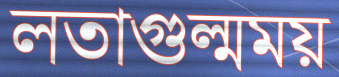
লতাগুল্মময়